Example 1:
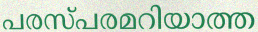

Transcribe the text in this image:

പരസ്പരമറിയാത്ത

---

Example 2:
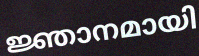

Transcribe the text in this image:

ജ്ഞാനമായി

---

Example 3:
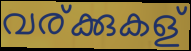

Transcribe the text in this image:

വര്ക്കുകള്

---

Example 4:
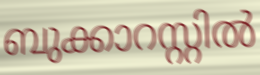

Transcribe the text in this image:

ബുക്കാറസ്റ്റിൽ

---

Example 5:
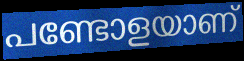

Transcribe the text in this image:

പണ്ടോളയാണ്